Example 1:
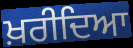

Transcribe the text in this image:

ਖ਼ਰੀਦਿਆ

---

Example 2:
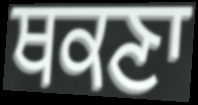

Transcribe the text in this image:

ਥਕਣਾ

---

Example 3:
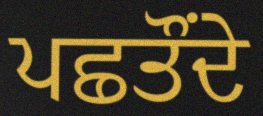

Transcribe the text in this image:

ਪਛਤੌਂਦੇ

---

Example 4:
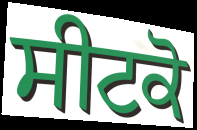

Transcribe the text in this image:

ਸੀਟਕੋ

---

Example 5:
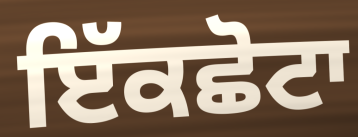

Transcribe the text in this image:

ਇੱਕਛੋਟਾ